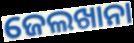
ଜେଲଖାନା